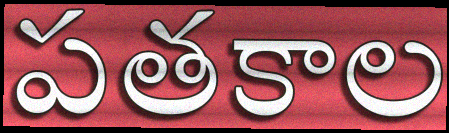
పతకాల